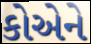
કોએને